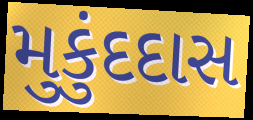
મુકુંદદાસ